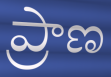
ప్రాణ